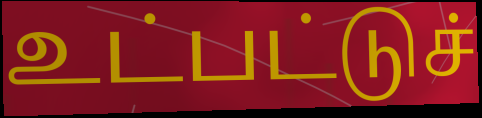
உட்பட்டுச்